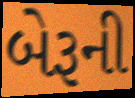
બેરૂની